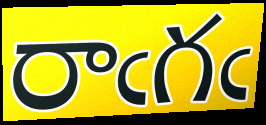
రాఁగఁ